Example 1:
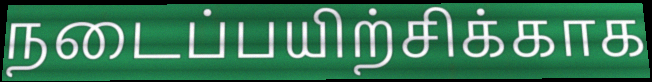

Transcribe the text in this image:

நடைப்பயிற்சிக்காக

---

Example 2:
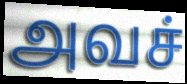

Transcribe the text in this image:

அவச்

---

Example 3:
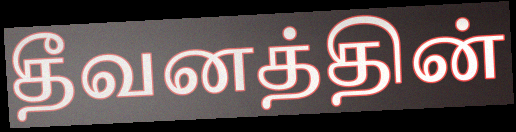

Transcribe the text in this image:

தீவனத்தின்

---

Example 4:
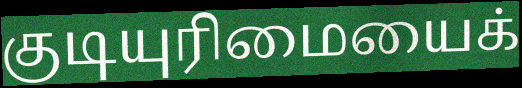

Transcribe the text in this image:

குடியுரிமையைக்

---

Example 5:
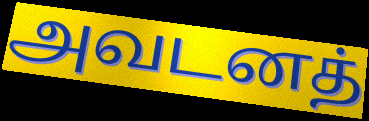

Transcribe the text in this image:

அவடனத்